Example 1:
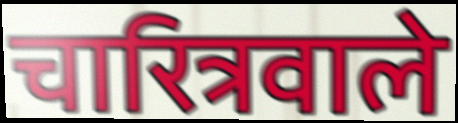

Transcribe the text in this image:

चारित्रवाले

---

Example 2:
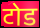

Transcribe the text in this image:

टोड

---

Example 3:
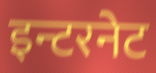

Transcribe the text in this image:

इन्‍टरनेट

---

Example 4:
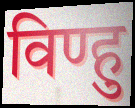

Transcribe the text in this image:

विण्हु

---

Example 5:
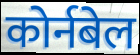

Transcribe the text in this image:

कोर्नबेल